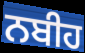
ਨਬੀਹ